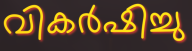
വികർഷിച്ചു